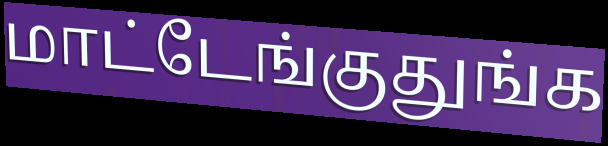
மாட்டேங்குதுங்க